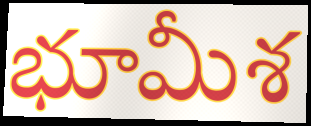
భూమీశ